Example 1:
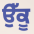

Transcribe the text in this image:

ਉੱਕੂ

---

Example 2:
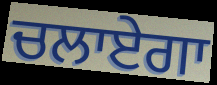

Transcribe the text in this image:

ਚਲਾਏਗਾ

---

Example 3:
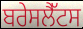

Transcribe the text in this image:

ਬਰੇਸਲੈੱਟਸ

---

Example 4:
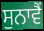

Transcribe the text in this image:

ਸੁਨਾਵੈਂ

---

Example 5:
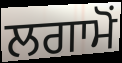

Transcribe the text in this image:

ਲਗਾਮੋਂ